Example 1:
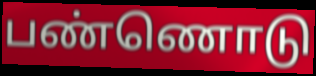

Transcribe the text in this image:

பண்ணொடு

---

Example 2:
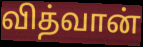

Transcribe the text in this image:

வித்வான்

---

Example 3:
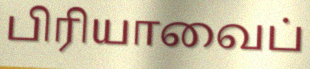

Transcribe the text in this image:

பிரியாவைப்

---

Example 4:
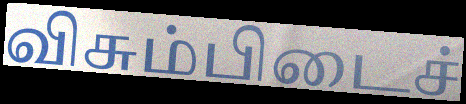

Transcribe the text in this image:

விசும்பிடைச்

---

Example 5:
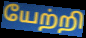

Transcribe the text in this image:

யேற்றி